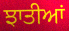
ਝਾਤੀਆਂ